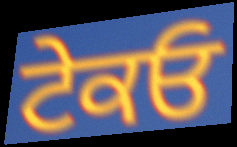
ਟੇਕਓ